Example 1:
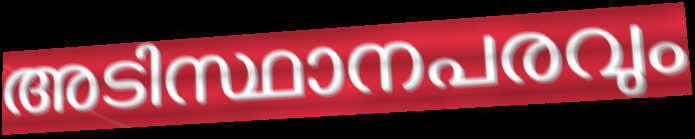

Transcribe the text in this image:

അടിസ്ഥാനപരവും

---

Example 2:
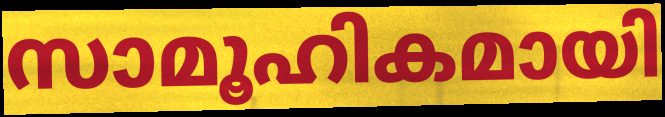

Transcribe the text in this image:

സാമൂഹികമായി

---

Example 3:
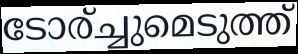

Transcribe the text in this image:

ടോര്ച്ചുമെടുത്ത്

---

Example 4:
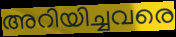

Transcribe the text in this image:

അറിയിച്ചവരെ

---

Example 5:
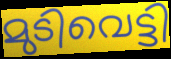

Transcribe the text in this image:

മുടിവെട്ടി